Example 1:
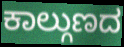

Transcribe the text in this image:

ಕಾಲ್ಗುಣದ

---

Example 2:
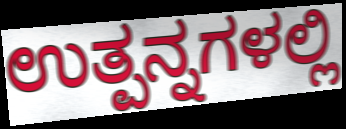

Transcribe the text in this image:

ಉತ್ಪನ್ನಗಳಲ್ಲಿ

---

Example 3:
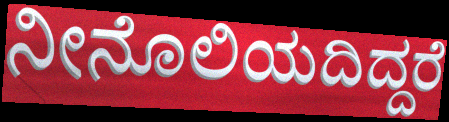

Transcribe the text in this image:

ನೀನೊಲಿಯದಿದ್ದರೆ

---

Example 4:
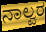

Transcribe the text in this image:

ನಾಲ್ವರ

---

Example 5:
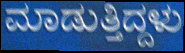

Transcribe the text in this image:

ಮಾಡುತ್ತಿದ್ದಳು